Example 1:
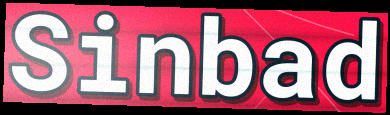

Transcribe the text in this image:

Sinbad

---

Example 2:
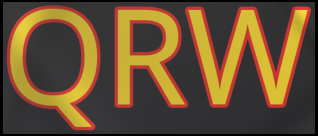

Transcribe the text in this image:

QRW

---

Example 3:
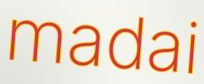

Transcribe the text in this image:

madai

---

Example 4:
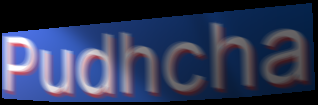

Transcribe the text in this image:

Pudhcha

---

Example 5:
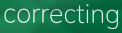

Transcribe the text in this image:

correcting